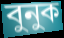
বুনুক